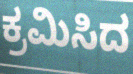
ಕ್ರಮಿಸಿದ